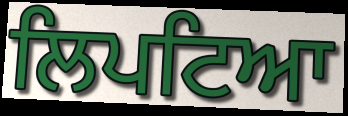
ਲਿਪਟਿਆ